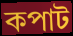
কপাট